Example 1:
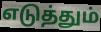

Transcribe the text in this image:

எடுத்தும்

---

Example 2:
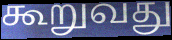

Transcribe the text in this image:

கூறுவது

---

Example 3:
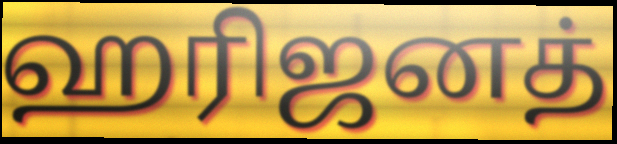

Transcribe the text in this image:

ஹரிஜனத்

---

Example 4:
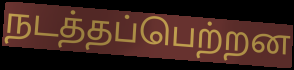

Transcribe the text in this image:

நடத்தப்பெற்றன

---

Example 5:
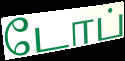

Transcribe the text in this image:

டோப்